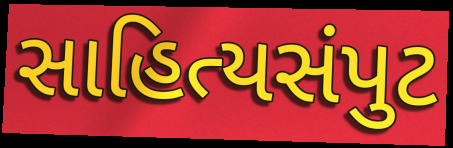
સાહિત્યસંપુટ